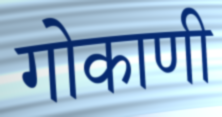
गोकाणी